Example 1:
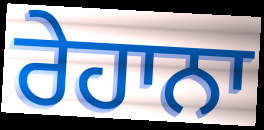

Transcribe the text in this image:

ਰੇਹਾਨਾ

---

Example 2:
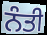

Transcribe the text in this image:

ਨੰਤੀ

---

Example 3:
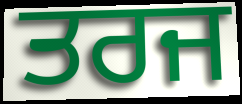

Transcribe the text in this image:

ਤਰਜ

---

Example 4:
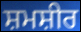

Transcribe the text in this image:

ਸ਼ਮਸ਼ੀਰ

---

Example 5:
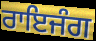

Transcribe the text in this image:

ਰਾਇਜੰਗ